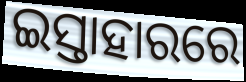
ଇସ୍ତାହାରରେ